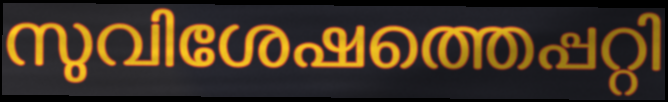
സുവിശേഷത്തെപ്പറ്റി